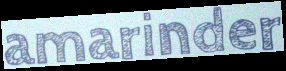
amarinder